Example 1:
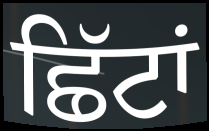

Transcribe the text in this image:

ਛਿੱਟਾਂ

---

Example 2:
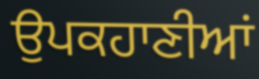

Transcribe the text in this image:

ਉਪਕਹਾਣੀਆਂ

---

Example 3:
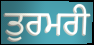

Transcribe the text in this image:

ਤੁਰਮਰੀ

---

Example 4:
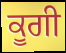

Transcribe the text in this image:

ਕੂਗੀ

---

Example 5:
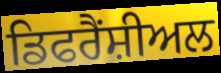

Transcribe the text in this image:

ਡਿਫਰੈਂਸ਼ੀਅਲ